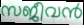
സജീവൻ